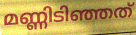
മണ്ണിടിഞ്ഞത്